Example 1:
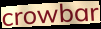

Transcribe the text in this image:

crowbar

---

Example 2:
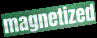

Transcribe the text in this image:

magnetized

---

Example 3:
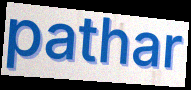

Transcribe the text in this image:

pathar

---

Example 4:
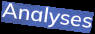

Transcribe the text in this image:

Analyses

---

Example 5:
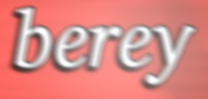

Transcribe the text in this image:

berey